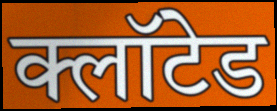
क्लॉटेड